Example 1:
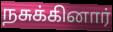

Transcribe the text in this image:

நசுக்கினார்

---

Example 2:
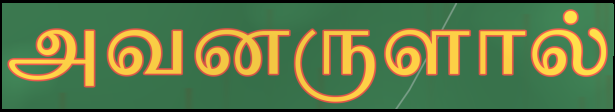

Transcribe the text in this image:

அவனருளால்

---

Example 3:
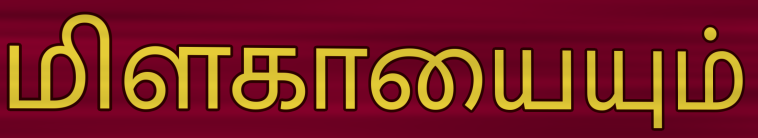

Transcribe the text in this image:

மிளகாயையும்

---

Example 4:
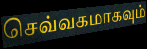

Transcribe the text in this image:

செவ்வகமாகவும்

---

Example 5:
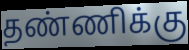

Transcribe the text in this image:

தண்ணிக்கு